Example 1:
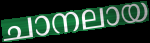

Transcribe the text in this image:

ചാനലായ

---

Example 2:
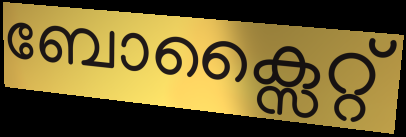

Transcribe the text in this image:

ബോക്സൈറ്റ്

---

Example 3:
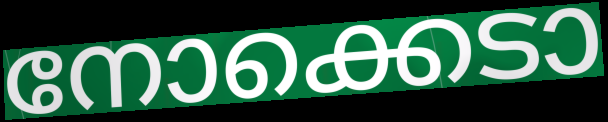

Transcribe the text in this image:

നോക്കെടാ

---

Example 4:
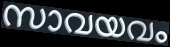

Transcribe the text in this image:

സാവയവം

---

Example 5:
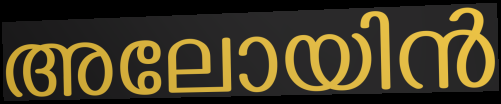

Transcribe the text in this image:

അലോയിൻ